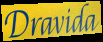
Dravida